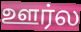
ஊர்ல